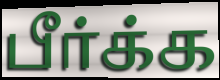
பீர்க்க